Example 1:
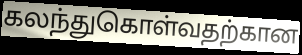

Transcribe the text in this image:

கலந்துகொள்வதற்கான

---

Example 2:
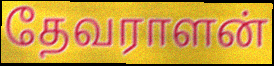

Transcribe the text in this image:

தேவராளன்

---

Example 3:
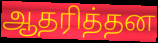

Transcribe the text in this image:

ஆதரித்தன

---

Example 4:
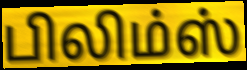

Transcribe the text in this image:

பிலிம்ஸ்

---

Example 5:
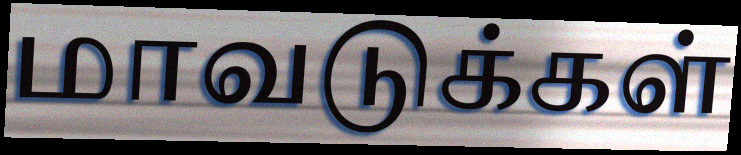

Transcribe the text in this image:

மாவடுக்கள்